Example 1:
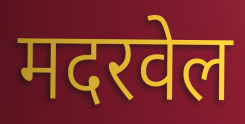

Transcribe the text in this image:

मदरवेल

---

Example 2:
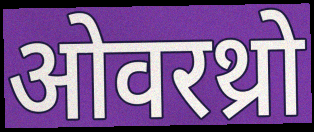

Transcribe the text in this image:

ओवरथ्रो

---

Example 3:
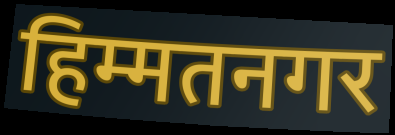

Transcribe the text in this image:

हिम्मतनगर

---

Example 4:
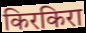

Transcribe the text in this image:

किरकिरा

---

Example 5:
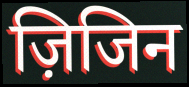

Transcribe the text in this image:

ज़िजिन